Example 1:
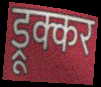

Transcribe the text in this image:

ड्रूक्कर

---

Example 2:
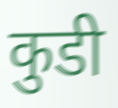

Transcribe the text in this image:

कुडी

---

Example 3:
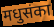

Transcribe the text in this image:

मधुसंका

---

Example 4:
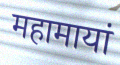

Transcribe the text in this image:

महामायां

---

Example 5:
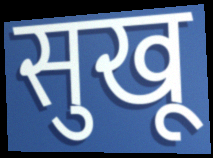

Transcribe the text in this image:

सुखू